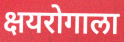
क्षयरोगाला